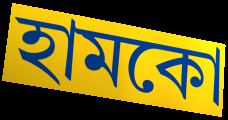
হামকো